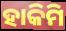
ହାକିମି